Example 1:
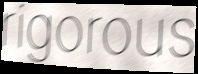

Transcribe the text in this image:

rigorous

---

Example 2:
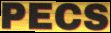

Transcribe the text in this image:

PECS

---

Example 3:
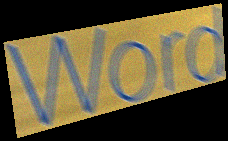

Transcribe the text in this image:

Word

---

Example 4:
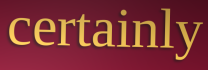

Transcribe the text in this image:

certainly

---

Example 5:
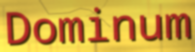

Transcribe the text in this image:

Dominum